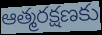
ఆత్మరక్షణకు